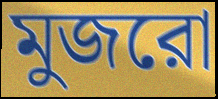
মুজরো